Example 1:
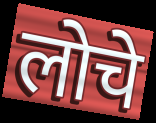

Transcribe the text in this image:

लोचे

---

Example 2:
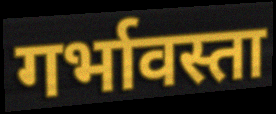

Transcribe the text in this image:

गर्भावस्ता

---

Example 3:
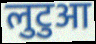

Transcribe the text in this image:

लुटुआ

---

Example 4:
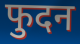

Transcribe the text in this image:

फुदन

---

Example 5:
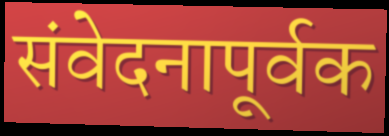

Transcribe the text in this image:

संवेदनापूर्वक